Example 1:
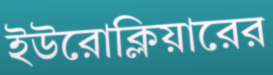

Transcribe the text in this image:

ইউরোক্লিয়ারের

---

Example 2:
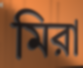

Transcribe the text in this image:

মিরা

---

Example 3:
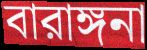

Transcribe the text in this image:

বারাঙ্গনা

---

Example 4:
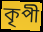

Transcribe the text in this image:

কৃপী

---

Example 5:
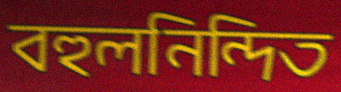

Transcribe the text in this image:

বহুলনিন্দিত